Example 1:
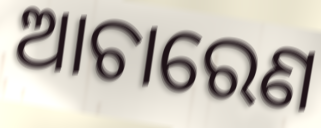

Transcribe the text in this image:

ଆଚାରେଣ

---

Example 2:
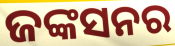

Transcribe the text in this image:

ଜଙ୍କସନର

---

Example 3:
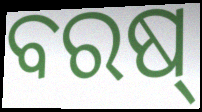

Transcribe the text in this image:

ବରଷ୍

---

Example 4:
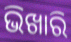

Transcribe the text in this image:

ଭିଖାରି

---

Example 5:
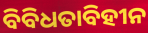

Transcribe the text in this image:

ବିବିଧତାବିହୀନ